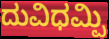
ದುವಿಧಮ್ಪಿ